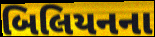
બિલિયનના